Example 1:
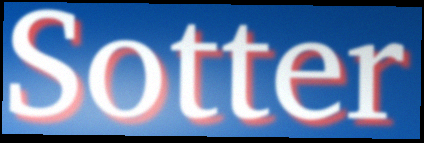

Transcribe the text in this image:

Sotter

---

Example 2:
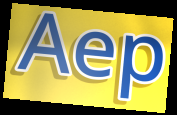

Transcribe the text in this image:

Aep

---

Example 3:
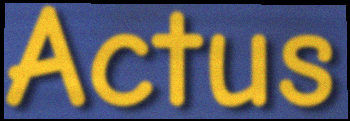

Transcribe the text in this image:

Actus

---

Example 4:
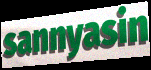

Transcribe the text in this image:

sannyasin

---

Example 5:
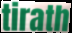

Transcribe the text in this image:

tirath